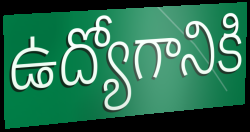
ఉద్యోగానికి